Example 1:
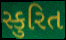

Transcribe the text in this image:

સ્કુરિત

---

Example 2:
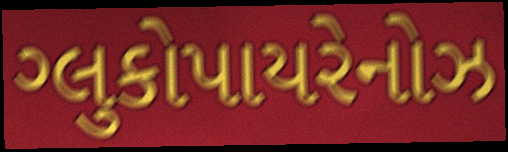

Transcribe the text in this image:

ગ્લુકોપાયરેનોઝ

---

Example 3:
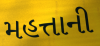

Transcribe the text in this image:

મહત્તાની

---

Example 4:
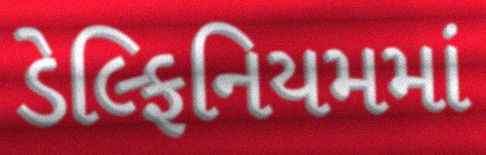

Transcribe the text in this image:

ડેલ્ફિનિયમમાં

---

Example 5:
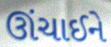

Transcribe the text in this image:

ઊંચાઈને